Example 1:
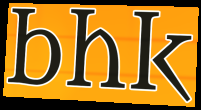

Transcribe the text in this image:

bhk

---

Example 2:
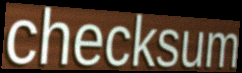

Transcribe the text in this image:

checksum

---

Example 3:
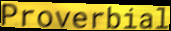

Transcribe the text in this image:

Proverbial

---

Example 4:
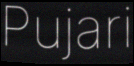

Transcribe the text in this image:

Pujari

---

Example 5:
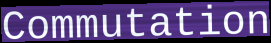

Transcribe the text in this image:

Commutation